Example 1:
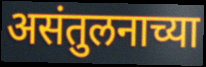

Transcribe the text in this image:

असंतुलनाच्या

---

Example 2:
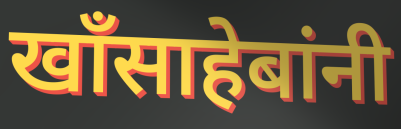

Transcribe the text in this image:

खॉंसाहेबांनी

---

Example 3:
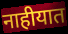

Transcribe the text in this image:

नाहीयात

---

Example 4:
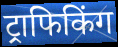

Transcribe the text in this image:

ट्राफिकिंग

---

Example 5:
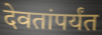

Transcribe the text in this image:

देवतांपर्यंत